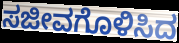
ಸಜೀವಗೊಳಿಸಿದ